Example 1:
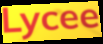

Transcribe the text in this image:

Lycee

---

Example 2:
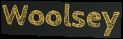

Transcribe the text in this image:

Woolsey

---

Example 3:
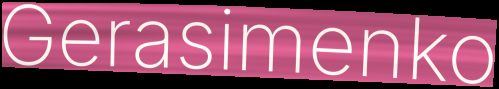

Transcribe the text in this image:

Gerasimenko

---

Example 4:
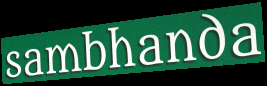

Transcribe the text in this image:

sambhanda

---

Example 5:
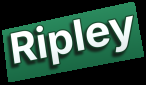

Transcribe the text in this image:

Ripley